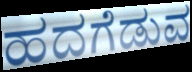
ಹದಗೆಡುವ